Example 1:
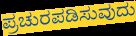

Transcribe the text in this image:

ಪ್ರಚುರಪಡಿಸುವುದು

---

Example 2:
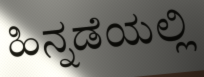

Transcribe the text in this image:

ಹಿನ್ನಡೆಯಲ್ಲಿ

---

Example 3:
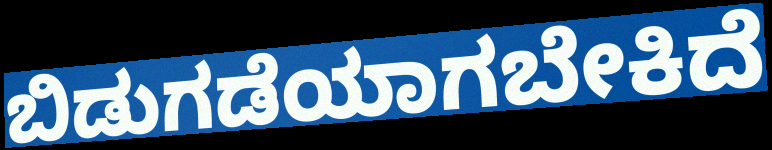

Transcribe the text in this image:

ಬಿಡುಗಡೆಯಾಗಬೇಕಿದೆ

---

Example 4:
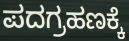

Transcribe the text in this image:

ಪದಗ್ರಹಣಕ್ಕೆ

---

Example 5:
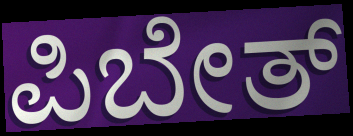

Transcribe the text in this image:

ಪಿಬೇತ್